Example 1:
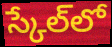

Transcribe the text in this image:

స్కేల్‌లో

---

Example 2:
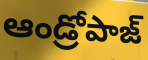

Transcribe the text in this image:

ఆండ్రోపాజ్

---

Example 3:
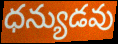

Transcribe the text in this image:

ధన్యుడవు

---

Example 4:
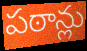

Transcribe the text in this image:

పఠాన్లు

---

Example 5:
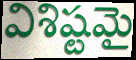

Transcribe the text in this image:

విశిష్టమై